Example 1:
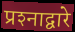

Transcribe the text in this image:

प्रश्नाद्वारे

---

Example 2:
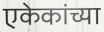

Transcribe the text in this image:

एकेकांच्या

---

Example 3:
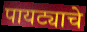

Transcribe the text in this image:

पायट्याचे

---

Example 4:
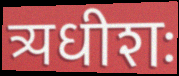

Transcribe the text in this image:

त्र्यधीशः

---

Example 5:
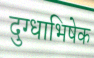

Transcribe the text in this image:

दुग्धाभिषेक